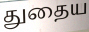
துதைய